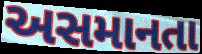
અસમાનતા